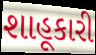
શાહૂકારી